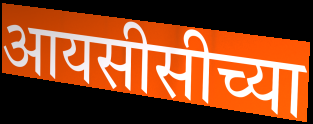
आयसीसीच्या